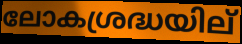
ലോകശ്രദ്ധയില്